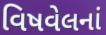
વિષવેલનાં